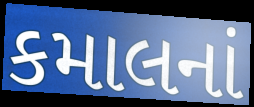
કમાલનાં